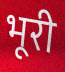
भूरी